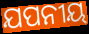
ଯପନୀୟ